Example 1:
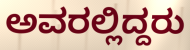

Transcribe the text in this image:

ಅವರಲ್ಲಿದ್ದರು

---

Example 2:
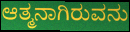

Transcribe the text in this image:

ಆತ್ಮನಾಗಿರುವನು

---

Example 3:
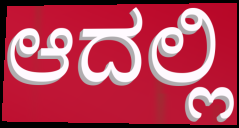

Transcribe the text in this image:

ಆದಲ್ಲಿ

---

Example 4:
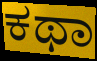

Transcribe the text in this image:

ಕಥಾ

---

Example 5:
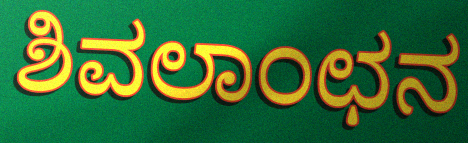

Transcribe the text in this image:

ಶಿವಲಾಂಛನ